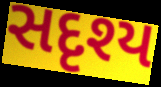
સદૃશ્ય